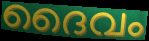
ദൈവം